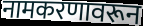
नामकरणावरून